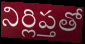
నిర్లిప్తతో